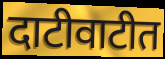
दाटीवाटीत